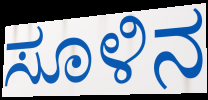
ಸೂಳಿನ